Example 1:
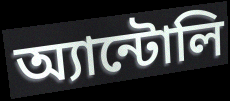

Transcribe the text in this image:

অ্যান্টোলি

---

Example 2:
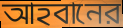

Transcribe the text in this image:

আহবানের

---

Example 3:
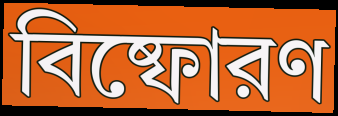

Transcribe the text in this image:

বিষ্ফোরণ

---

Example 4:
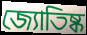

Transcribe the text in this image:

জ্যোতিষ্ক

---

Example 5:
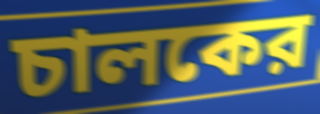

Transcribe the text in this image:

চালকের